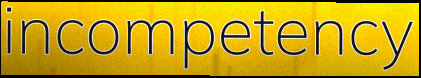
incompetency